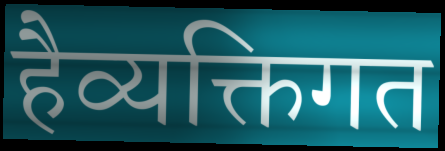
हैव्यक्तिगत